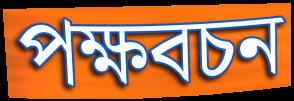
পক্ষবচন